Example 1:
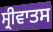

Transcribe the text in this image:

ਸ੍ਰੀਵਾਤਸ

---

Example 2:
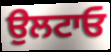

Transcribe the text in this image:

ਉਲਟਾਓ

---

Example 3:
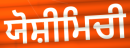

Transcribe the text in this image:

ਯੋਸ਼ੀਮਿਚੀ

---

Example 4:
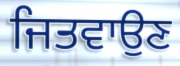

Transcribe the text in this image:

ਜਿਤਵਾਉਣ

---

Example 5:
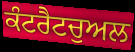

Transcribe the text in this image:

ਕੰਟਰੈਟਚੁਅਲ